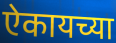
ऐकायच्या